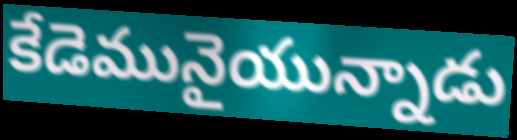
కేడెమునైయున్నాడు